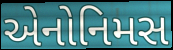
એનોનિમસ